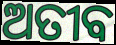
ଅତୀବ